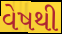
વેષથી